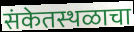
संकेतस्थळाचा